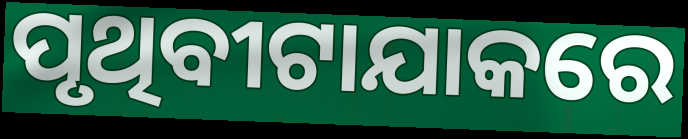
ପୃଥିବୀଟାଯାକରେ